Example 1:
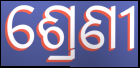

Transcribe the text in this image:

ଶ୍ରେଣୀ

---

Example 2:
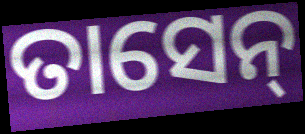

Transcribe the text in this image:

ତାସେନ୍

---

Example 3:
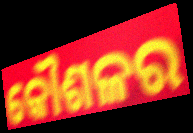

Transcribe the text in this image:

କୌଶଳର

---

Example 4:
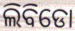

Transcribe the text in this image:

ଲିବିଡୋ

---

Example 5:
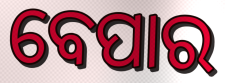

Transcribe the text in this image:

ବେପାର